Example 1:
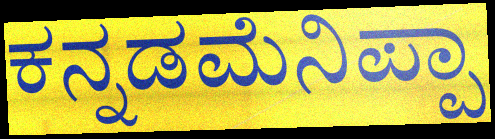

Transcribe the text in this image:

ಕನ್ನಡಮೆನಿಪ್ಪಾ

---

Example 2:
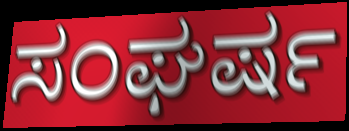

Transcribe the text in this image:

ಸಂಘರ್ಷ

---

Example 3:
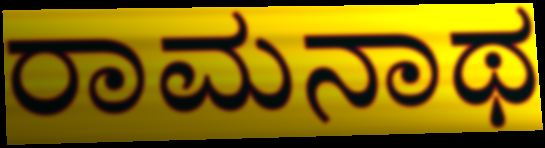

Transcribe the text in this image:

ರಾಮನಾಥ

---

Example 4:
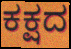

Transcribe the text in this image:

ಕಕ್ಷದ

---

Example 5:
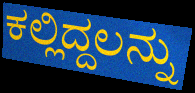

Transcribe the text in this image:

ಕಲ್ಲಿದ್ದಲನ್ನು